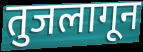
तुजलागून